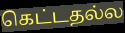
கெட்டதல்ல